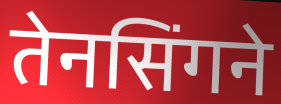
तेनसिंगने